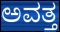
ಅವತ್ತ